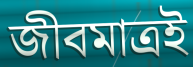
জীবমাত্রই